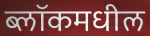
ब्लॉकमधील